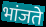
भांजते